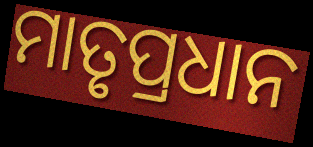
ମାତୃପ୍ରଧାନ